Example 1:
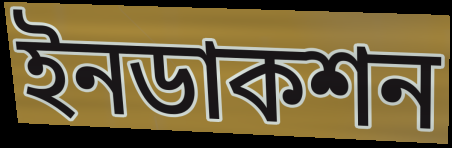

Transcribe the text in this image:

ইনডাকশন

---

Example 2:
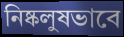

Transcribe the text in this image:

নিষ্কলুষভাবে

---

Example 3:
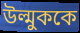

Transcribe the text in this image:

উল্মুককে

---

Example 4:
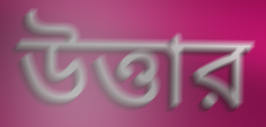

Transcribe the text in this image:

উত্তার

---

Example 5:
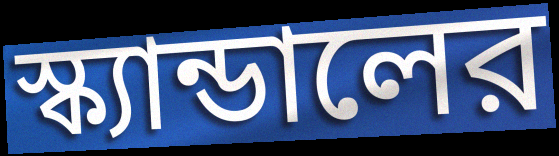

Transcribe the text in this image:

স্ক্যান্ডালের